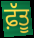
ਫ਼ੱਤੂ